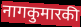
नागकुमारकी